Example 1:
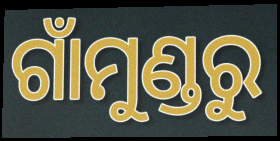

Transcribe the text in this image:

ଗାଁମୁଣ୍ଡରୁ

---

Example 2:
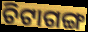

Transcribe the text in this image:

ଚିଟାଗଙ୍ଗ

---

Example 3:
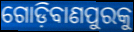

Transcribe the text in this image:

ଗୋଡ଼ିବାଣପୁରକୁ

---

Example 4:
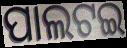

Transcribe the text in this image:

ପାଲଟଇ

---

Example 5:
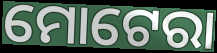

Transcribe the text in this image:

ମୋଟେରା